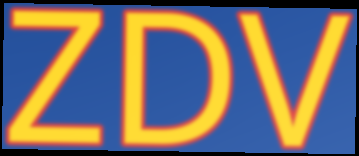
ZDV